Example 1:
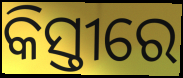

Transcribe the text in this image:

କିସ୍ତୀରେ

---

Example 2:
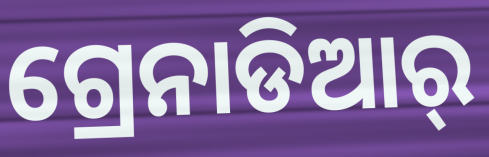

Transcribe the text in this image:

ଗ୍ରେନାଡିଆର୍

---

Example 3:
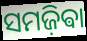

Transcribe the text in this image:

ସମଜ଼ିଵା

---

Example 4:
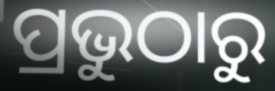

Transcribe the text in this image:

ପ୍ରଭୁଠାରୁ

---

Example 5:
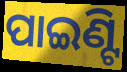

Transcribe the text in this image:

ପାଇଣ୍ଟି